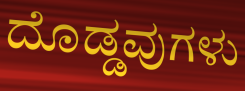
ದೊಡ್ಡವುಗಳು